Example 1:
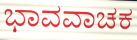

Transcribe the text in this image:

ಭಾವವಾಚಕ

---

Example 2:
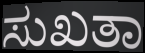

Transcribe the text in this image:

ಸುಖತಾ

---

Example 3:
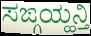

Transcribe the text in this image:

ಸಙ್ಗಯ್ಹನ್ತಿ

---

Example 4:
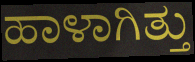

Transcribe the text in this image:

ಹಾಳಾಗಿತ್ತು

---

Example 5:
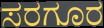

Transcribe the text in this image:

ಸರಗೂರ